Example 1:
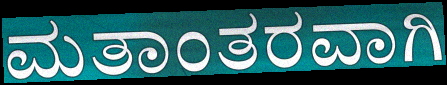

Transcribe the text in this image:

ಮತಾಂತರವಾಗಿ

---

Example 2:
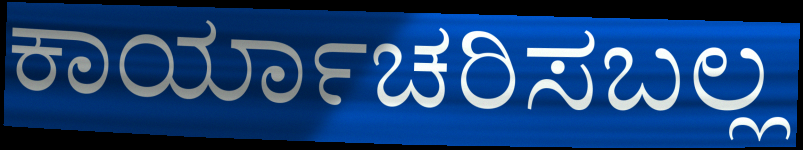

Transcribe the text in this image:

ಕಾರ್ಯಾಚರಿಸಬಲ್ಲ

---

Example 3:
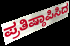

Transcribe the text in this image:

ಪ್ರತಿಷ್ಠಾಪಿಸಿದ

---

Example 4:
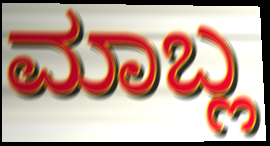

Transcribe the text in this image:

ಮಾಬ್ಲ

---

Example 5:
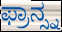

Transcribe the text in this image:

ಫ್ರಾನ್ಸ್ನ